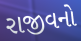
રાજીવનો